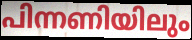
പിന്നണിയിലും